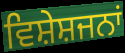
ਵਿਸ਼ੇਸ਼ਜਨਾਂ